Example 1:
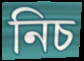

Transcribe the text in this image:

নিচ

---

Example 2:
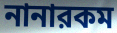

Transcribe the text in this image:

নানারকম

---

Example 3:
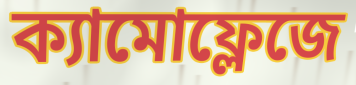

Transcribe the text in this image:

ক্যামোফ্লেজে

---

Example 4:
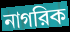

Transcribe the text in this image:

নাগরিক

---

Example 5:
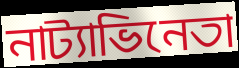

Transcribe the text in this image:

নাট্যাভিনেতা